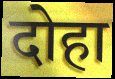
दोहा